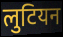
लुटियन